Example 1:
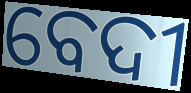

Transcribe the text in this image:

ବେଦୀ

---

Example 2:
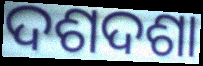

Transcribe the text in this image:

ଦଶଦଶା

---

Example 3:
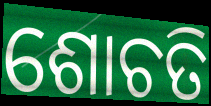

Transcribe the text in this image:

ଶୋଚତି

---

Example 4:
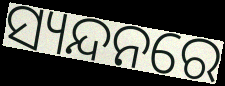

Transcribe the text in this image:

ସ୍ୟନ୍ଦନରେ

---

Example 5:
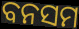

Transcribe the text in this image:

ବନସମ